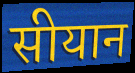
सीयान